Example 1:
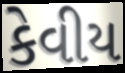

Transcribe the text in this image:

કેવીય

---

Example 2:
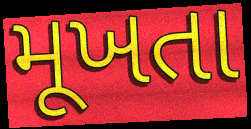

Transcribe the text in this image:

મૂખતા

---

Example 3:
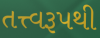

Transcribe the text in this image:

તત્ત્વરૂપથી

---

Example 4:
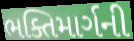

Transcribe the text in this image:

ભક્તિમાર્ગની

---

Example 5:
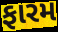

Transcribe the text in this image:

ફારમ